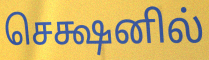
செக்ஷனில்